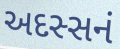
અદસ્સનં